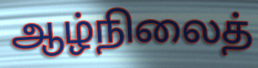
ஆழ்நிலைத்